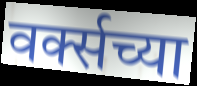
वर्क्‍सच्या